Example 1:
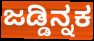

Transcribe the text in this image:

ಜಡ್ಡಿನ್ನಕ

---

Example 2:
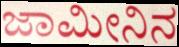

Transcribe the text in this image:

ಜಾಮೀನಿನ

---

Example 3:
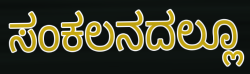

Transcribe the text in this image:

ಸಂಕಲನದಲ್ಲೂ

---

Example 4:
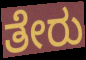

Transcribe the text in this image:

ತೇರು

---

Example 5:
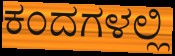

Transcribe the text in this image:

ಕಂದಗಳಲ್ಲಿ